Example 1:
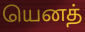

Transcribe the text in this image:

யெனத்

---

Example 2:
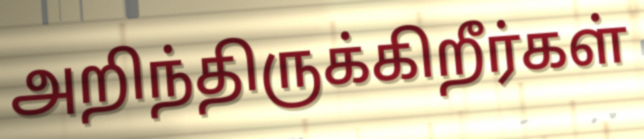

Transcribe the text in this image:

அறிந்திருக்கிறீர்கள்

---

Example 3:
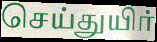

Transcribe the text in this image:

செய்துயிர்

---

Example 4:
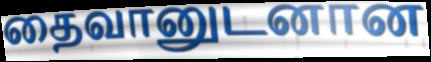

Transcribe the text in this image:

தைவானுடனான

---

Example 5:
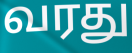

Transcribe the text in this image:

வரது